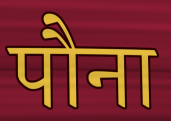
पौना